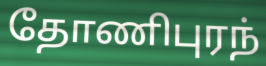
தோணிபுரந்